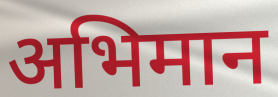
अभिमान